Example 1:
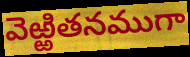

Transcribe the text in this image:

వెఱ్ఱితనముగా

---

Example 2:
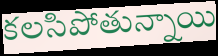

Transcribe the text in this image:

కలసిపోతున్నాయి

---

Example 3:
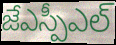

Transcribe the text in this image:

జేఎస్పీఎల్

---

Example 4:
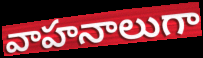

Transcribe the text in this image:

వాహనాలుగా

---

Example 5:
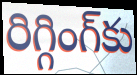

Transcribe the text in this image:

రిగ్గింగ్‌కు